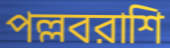
পল্লবরাশি